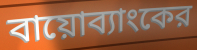
বায়োব্যাংকের